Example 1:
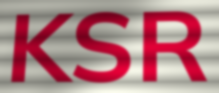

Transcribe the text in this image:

KSR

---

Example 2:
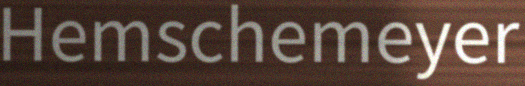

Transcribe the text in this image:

Hemschemeyer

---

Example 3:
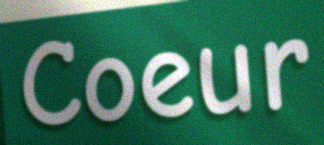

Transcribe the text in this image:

Coeur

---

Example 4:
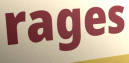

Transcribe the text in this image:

rages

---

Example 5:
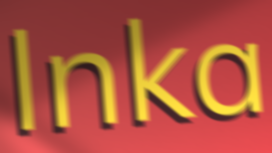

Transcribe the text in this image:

Inka